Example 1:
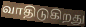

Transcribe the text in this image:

வாதிடுகிறது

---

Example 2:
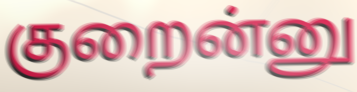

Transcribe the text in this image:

குறைன்னு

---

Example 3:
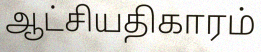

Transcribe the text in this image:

ஆட்சியதிகாரம்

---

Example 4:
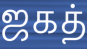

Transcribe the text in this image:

ஜகத்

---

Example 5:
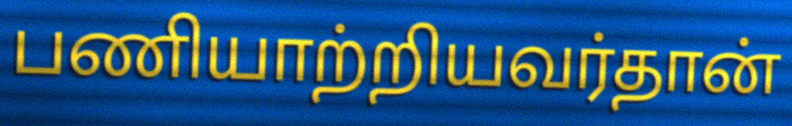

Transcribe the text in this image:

பணியாற்றியவர்தான்